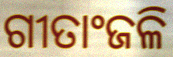
ଗୀତାଂଜଳି